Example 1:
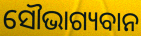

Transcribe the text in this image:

ସୌଭାଗ୍ୟବାନ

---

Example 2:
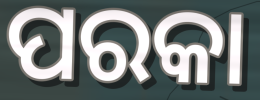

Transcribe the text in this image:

ପରକା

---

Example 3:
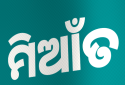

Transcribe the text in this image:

ମିଆଁତ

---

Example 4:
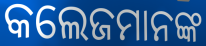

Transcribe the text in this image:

କଲେଜମାନଙ୍କ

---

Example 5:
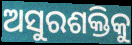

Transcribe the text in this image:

ଅସୁରଶକ୍ତିକୁ